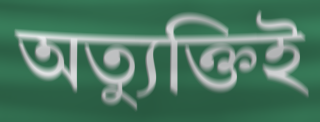
অত্যুক্তিই